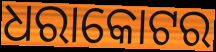
ଧରାକୋଟର